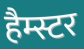
हैम्स्टर